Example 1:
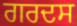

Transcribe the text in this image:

ਗਰਦਸ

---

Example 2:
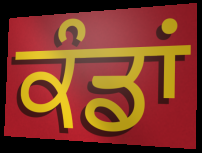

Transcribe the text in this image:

ਕੰਡਾਂ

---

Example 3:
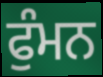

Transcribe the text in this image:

ਫੁੰਮਨ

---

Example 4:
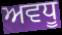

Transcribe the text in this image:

ਅਵਧੂ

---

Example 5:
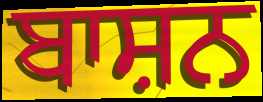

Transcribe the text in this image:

ਬਾਸ਼ਨ